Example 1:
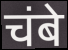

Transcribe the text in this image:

चंबे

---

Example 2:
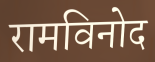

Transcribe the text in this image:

रामविनोद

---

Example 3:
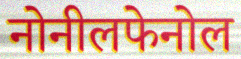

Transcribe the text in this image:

नोनीलफेनोल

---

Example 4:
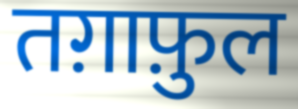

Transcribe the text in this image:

तग़ाफ़ुल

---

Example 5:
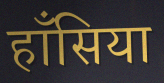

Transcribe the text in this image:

हाँसिया